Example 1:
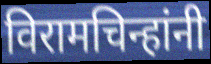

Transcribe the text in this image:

विरामचिन्हांनी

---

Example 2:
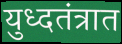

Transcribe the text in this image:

युध्दतंत्रात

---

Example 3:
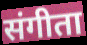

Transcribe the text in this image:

संगीता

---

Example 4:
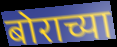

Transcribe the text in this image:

बोराच्या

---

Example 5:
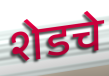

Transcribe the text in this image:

शेडचे